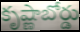
కృష్ణాబోర్డు